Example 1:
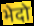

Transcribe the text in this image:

भेदो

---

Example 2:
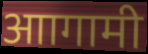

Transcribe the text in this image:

आागामी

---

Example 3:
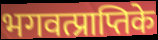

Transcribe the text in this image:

भगवत्प्राप्तिके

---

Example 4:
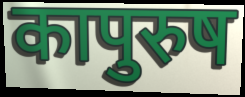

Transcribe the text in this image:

कापुरुष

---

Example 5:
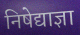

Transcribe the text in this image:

निषेद्याज्ञा